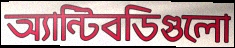
অ্যান্টিবডিগুলো